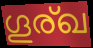
ഗൂര്ഖ